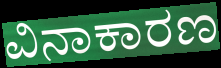
ವಿನಾಕಾರಣ